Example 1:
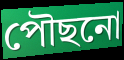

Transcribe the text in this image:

পৌছনো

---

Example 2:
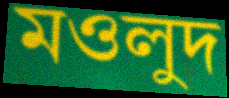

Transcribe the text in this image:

মওলুদ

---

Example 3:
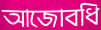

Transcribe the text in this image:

আজোবধি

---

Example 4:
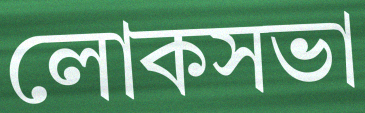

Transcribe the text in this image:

লোকসভা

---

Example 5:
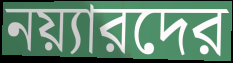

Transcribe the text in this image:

নয়্যারদের